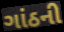
ગાંઠની